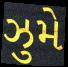
ઝુમે